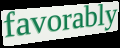
favorably